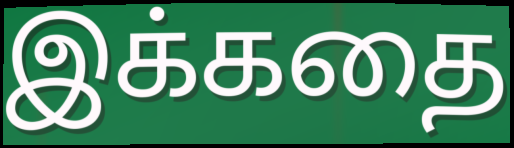
இக்கதை